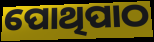
ପୋଥିପାଠ